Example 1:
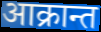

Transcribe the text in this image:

आक्रान्त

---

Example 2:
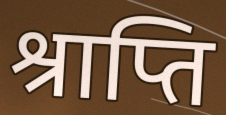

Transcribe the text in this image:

श्राप्ति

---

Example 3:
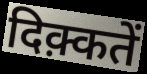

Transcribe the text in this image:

दिक़्कतें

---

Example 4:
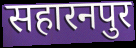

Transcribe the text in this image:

सहारनपुर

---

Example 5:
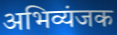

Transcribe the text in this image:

अभिव्यंजक